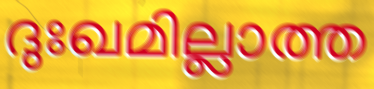
ദുഃഖമില്ലാത്ത